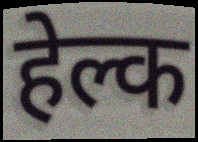
हेल्क